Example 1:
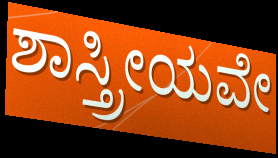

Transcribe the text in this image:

ಶಾಸ್ತ್ರೀಯವೇ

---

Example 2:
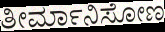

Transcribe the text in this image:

ತೀರ್ಮಾನಿಸೋಣ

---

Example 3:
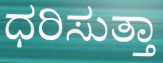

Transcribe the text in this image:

ಧರಿಸುತ್ತಾ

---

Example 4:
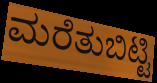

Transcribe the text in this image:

ಮರೆತುಬಿಟ್ಟಿ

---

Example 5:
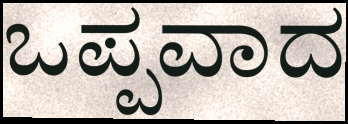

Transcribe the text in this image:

ಒಪ್ಪವಾದ